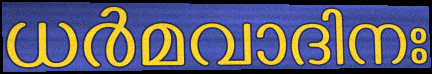
ധർമവാദിനഃ